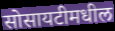
सोसायटीमधील